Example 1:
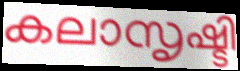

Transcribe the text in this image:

കലാസൃഷ്ടി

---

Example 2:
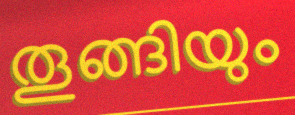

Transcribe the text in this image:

തൂങ്ങിയും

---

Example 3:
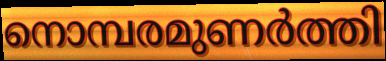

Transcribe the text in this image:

നൊമ്പരമുണർത്തി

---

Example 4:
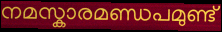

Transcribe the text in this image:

നമസ്കാരമണ്ഡപമുണ്ട്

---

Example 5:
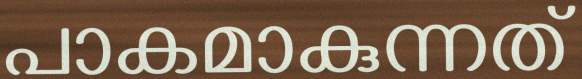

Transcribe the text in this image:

പാകമാകുന്നത്